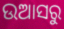
ଉଆସରୁ